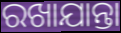
ରଖାଯାନ୍ତା